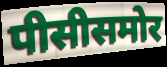
पीसीसमोर